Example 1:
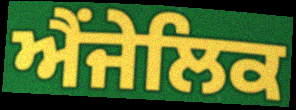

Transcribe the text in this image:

ਐਂਜੇਲਿਕ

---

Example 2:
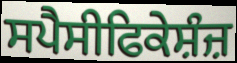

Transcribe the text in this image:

ਸਪੈਸੀਫਿਕੇਸ਼ੰਜ਼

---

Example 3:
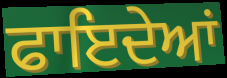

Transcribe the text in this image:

ਫਾਇਦੇਆਂ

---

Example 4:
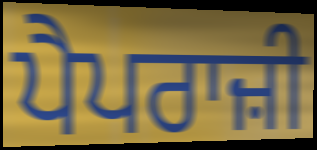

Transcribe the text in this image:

ਪੈਪਰਾਜ਼ੀ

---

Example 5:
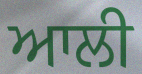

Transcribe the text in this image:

ਆਲੀ